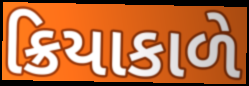
ક્રિયાકાળે